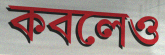
কবলেও